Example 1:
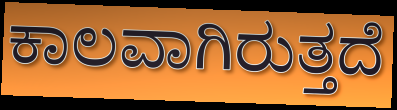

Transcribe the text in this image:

ಕಾಲವಾಗಿರುತ್ತದೆ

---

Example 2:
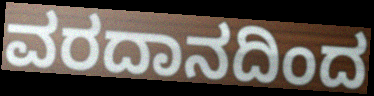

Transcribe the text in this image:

ವರದಾನದಿಂದ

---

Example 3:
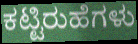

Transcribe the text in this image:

ಕಟ್ಟಿರುಹೆಗಳು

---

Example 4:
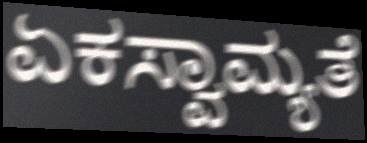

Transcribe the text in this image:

ಏಕಸ್ವಾಮ್ಯತೆ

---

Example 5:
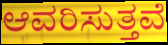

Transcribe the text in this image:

ಆವರಿಸುತ್ತವೆ